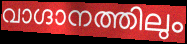
വാഗ്ദാനത്തിലും